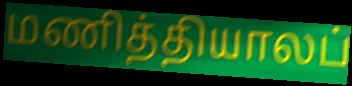
மணித்தியாலப்